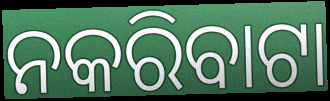
ନକରିବାଟା